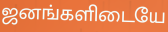
ஜனங்களிடையே